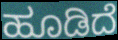
ಹೂಡಿದೆ